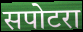
सपोटरा